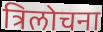
त्रिलोचना